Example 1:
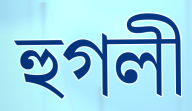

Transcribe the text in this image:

হুগলী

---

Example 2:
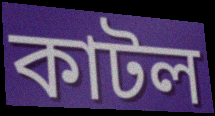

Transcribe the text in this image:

কাটল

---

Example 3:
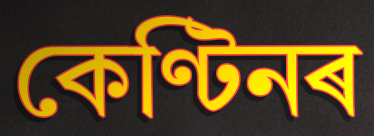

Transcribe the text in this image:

কেণ্টিনৰ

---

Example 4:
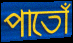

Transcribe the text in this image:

পাতোঁ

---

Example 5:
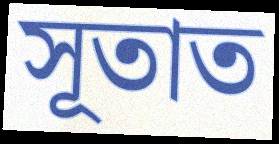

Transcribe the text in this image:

সূতাত